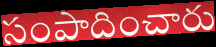
సంపాదించారు